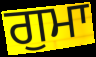
ਗੁਮਾ